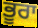
ਭੂਰਾ